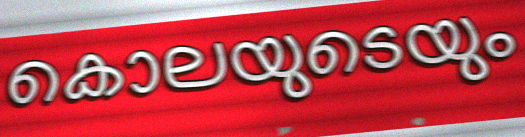
കൊലയുടെയും